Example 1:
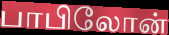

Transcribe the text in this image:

பாபிலோன்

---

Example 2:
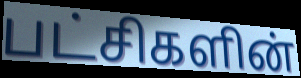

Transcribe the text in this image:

பட்சிகளின்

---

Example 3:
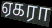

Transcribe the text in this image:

ஏகரா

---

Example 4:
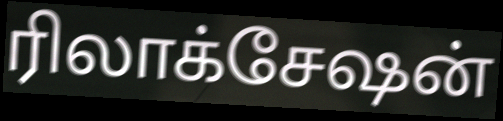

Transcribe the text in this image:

ரிலாக்சேஷன்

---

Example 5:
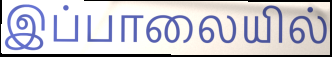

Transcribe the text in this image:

இப்பாலையில்